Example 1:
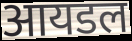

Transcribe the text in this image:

आयडल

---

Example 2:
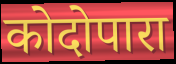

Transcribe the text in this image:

कोदोपारा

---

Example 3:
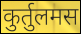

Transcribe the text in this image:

कुर्तुलमस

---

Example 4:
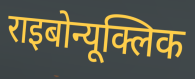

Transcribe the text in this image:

राइबोन्यूक्लिक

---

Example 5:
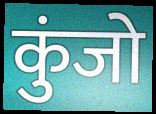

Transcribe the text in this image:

कुंजो